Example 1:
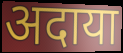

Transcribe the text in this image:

अदाया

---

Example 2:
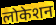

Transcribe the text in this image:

लोकेशन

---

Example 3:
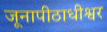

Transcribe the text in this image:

जूनापीठाधीश्वर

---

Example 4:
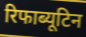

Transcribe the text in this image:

रिफाब्यूटिन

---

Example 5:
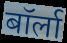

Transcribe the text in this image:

बॉर्ला